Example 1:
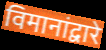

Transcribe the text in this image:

विमानांद्वारे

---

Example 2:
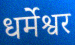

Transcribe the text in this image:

धर्मेश्वर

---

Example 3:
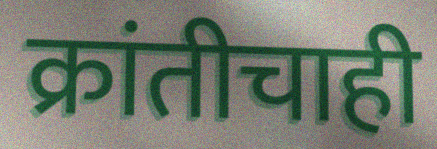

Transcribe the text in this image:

क्रांतीचाही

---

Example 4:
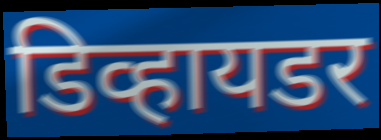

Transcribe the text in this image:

डिव्हायडर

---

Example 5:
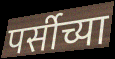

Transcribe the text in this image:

पर्सीच्या